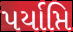
પર્યાપ્તિ